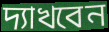
দ্যাখবেন